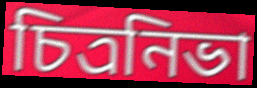
চিত্রনিভা